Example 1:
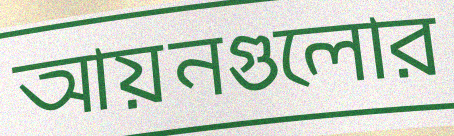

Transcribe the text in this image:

আয়নগুলোর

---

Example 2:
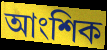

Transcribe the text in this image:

আংশিক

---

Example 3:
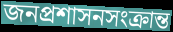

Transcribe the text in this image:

জনপ্রশাসনসংক্রান্ত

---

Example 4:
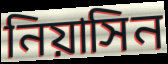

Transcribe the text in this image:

নিয়াসিন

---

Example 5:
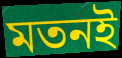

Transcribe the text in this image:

মতনই